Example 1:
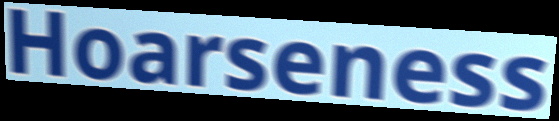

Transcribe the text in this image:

Hoarseness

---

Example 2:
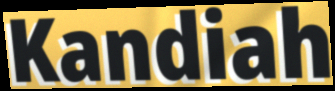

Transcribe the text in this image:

Kandiah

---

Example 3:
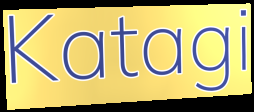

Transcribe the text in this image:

Katagi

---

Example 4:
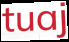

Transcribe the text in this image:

tuaj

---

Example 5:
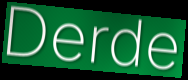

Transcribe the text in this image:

Derde